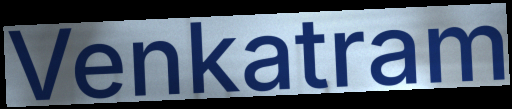
Venkatram